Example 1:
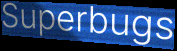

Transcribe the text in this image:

Superbugs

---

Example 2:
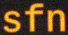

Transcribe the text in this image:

sfn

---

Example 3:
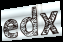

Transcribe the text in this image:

edx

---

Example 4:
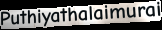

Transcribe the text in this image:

Puthiyathalaimurai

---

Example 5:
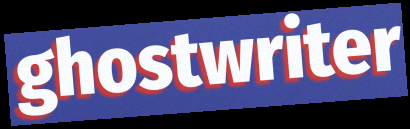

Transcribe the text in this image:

ghostwriter